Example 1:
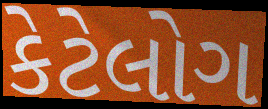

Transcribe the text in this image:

કેટેલોગ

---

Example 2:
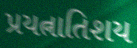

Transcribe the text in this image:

પ્રયત્નાતિશય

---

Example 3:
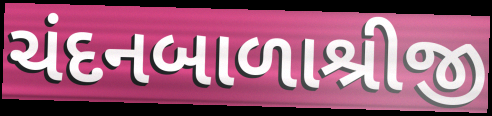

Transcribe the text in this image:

ચંદનબાળાશ્રીજી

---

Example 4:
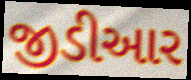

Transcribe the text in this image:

જીડીઆર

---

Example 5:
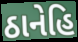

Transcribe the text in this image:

ઠાનેહિ